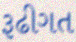
રૂઢીગત